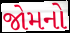
જોમનો